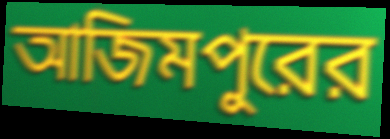
আজিমপুরের